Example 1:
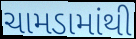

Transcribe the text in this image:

ચામડામાંથી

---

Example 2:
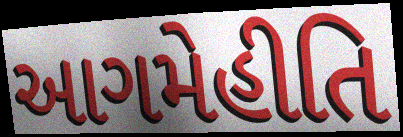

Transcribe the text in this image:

આગમેહીતિ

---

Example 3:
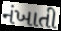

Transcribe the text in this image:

નંખાતી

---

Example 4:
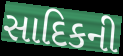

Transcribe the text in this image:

સાદિકની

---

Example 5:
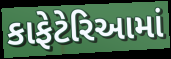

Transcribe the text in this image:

કાફેટેરિઆમાં